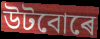
উটবোৰে